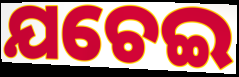
ଯଚେଇ